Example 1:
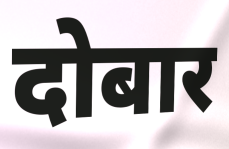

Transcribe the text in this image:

दोबार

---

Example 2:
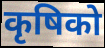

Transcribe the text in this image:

कृषिको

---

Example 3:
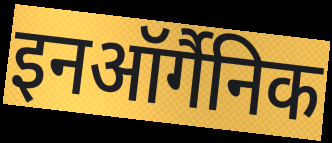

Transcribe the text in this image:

इनऑर्गैनिक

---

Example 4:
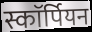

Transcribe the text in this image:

स्कॉर्पियन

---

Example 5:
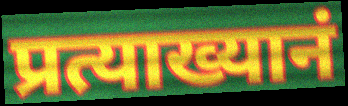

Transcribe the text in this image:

प्रत्याख्यानं